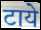
टाये